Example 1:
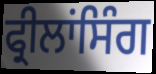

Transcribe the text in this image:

ਫ੍ਰੀਲਾਂਸਿੰਗ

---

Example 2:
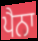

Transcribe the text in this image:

ਪੈਨਾ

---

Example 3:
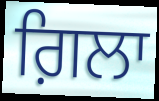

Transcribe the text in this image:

ਗ਼ਿਲਾ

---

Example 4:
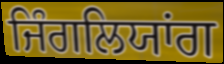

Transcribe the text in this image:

ਜਿੰਗਲਿਯਾਂਗ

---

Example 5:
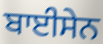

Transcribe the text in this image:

ਬਾਈਸੇਨ